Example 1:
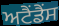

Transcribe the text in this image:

ਅਟੈਂਡੈਂਸ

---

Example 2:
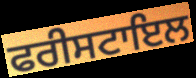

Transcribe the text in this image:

ਫਰੀਸਟਾਇਲ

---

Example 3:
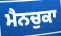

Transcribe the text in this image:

ਮੈਨਚੁਕਾ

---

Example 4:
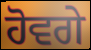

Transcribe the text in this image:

ਹੋਵਗੇ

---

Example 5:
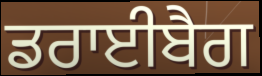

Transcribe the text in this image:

ਡਰਾਈਬੈਗ